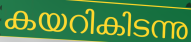
കയറികിടന്നു